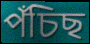
পঁচিছ